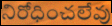
నిరోధించలేవు